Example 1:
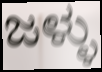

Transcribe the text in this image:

ಜಳ್ಳು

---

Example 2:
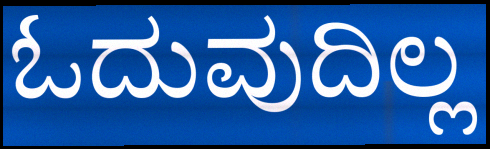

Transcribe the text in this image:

ಓದುವುದಿಲ್ಲ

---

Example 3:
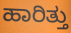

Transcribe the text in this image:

ಹಾರಿತ್ತು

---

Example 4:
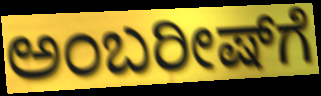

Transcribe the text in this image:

ಅಂಬರೀಷ್‌ಗೆ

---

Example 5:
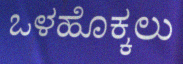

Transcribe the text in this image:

ಒಳಹೊಕ್ಕಲು